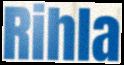
Rihla